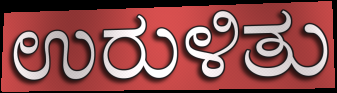
ಉರುಳಿತು